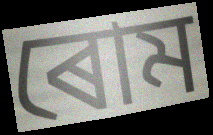
ৰোম